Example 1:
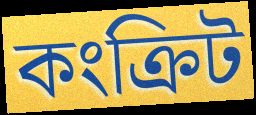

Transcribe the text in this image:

কংক্রিট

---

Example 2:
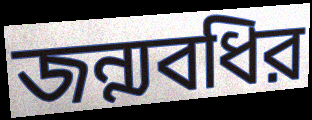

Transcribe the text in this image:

জন্মবধির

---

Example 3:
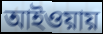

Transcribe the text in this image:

আইওয়ায়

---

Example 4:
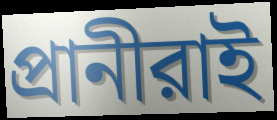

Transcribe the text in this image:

প্রানীরাই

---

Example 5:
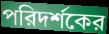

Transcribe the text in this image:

পরিদর্শকের